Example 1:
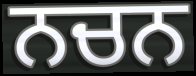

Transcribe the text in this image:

ਨਚਨ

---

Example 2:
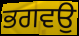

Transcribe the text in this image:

ਭਗਵਉ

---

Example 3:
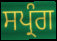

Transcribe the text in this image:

ਸਪ੍ਰੰਗ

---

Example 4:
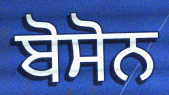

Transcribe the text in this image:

ਬੋਸੋਨ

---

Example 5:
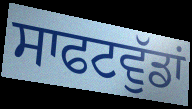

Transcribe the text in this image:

ਸਾਫਟਵੁੱਡਾਂ